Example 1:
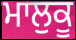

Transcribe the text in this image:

ਮਾਲੁਕੂ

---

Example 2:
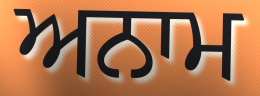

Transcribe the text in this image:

ਅਨਾਮ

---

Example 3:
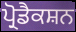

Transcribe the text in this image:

ਪ੍ਰੋਡੈਕਸ਼ਨ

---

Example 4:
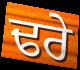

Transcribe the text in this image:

ਢਰੇ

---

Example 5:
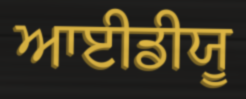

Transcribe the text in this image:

ਆਈਡੀਯੂ